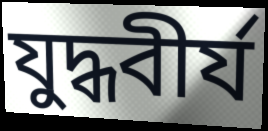
যুদ্ধবীর্য